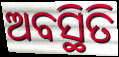
ଅବସ୍ଥିତି